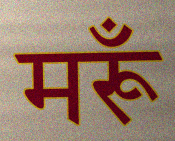
मरूँ